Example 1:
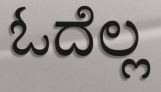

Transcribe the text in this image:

ಓದೆಲ್ಲ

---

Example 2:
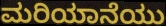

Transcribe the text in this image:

ಮರಿಯಾನೆಯು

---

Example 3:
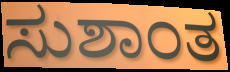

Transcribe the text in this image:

ಸುಶಾಂತ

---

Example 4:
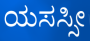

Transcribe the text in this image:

ಯಸಸ್ಸೀ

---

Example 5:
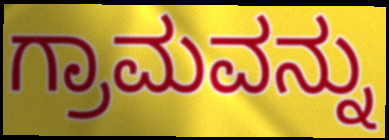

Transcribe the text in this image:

ಗ್ರಾಮವನ್ನು